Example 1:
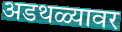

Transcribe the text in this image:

अडथळ्यावर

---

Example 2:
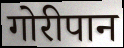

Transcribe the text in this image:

गोरीपान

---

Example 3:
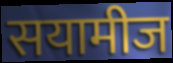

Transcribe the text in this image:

सयामीज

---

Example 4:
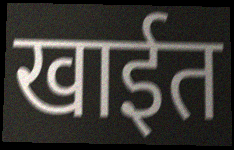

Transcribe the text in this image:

खाईत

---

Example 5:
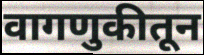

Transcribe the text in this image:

वागणुकीतून